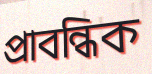
প্রাবন্ধিক